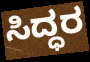
ಸಿದ್ಧರ